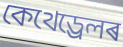
কেথেড্ৰেলৰ